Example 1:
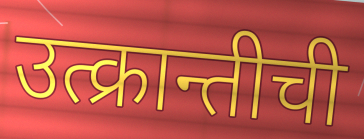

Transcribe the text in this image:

उत्क्रान्तीची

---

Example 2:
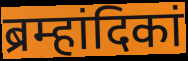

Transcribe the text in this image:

ब्रम्हांदिकां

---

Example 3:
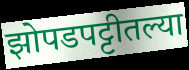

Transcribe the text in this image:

झोपडपट्टीतल्या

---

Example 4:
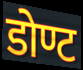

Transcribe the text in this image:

डोण्ट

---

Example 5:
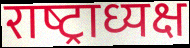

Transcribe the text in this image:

राष्ट्राध्यक्ष